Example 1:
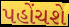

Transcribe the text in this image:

પહોંચશે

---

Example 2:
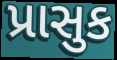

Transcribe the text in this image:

પ્રાસુક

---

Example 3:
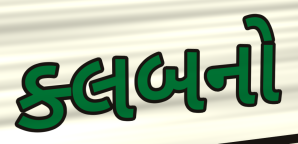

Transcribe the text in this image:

ક્લબનો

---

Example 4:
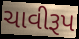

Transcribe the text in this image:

ચાવીરૂપ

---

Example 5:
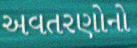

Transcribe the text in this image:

અવતરણોનો